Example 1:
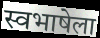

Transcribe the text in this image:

स्वभाषेला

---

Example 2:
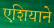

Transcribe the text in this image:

एशियाने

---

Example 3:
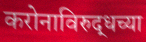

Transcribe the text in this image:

करोनाविरुद्धच्या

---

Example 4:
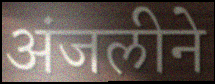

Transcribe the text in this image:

अंजलीने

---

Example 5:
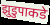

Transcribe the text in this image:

झुडुपाकडे